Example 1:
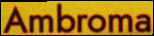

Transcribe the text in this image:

Ambroma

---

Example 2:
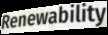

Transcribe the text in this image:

Renewability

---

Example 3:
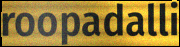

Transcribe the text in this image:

roopadalli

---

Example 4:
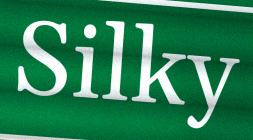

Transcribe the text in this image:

Silky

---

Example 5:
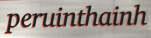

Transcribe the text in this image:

peruinthainh